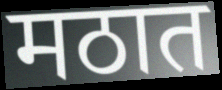
मठात